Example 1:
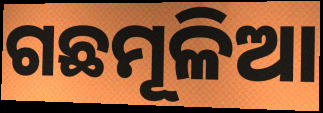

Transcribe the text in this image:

ଗଛମୂଳିଆ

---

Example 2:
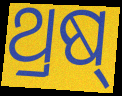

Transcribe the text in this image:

ଥ୍ରଷ୍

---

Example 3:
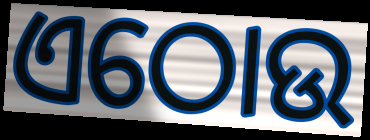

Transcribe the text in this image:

ଏଠୋଉ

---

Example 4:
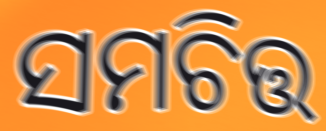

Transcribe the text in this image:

ସମଚିତ୍ତ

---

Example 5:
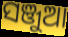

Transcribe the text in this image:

ସଞ୍ଜୁଆ